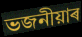
ভজনীয়াৰ